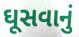
ઘૂસવાનું